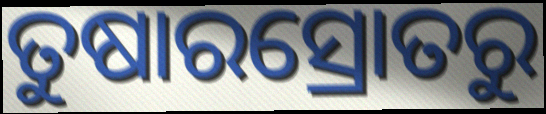
ତୁଷାରସ୍ରୋତରୁ